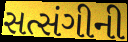
સત્સંગીની